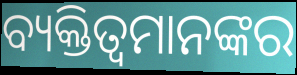
ବ୍ୟକ୍ତିତ୍ୱମାନଙ୍କର